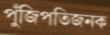
পুঁজিপতিজনক